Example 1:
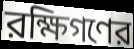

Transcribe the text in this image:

রক্ষিগণের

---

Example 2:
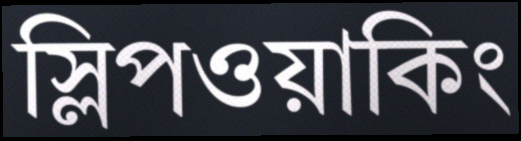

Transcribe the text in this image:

স্লিপওয়াকিং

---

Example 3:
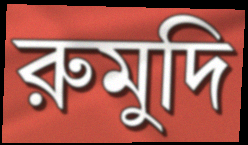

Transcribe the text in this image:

রুমুদি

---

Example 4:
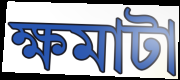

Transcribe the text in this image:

ক্ষমাটা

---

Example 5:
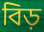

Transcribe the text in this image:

বিড়